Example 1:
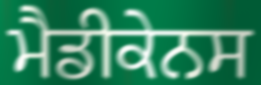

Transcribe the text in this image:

ਮੈਡੀਕੇਨਸ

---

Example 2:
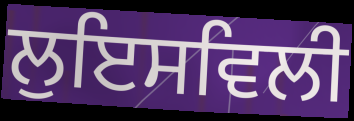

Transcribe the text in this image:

ਲੁਇਸਵਿਲੀ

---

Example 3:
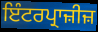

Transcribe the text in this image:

ਇੰਟਰਪ੍ਰਾਜ਼ੀਜ਼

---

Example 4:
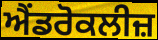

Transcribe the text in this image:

ਐਂਡਰੋਕਲੀਜ਼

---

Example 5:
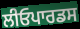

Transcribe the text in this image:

ਲੀਓਪਾਰਡਸ